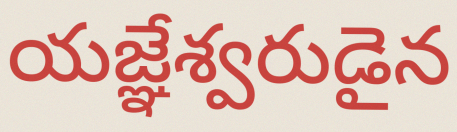
యజ్ఞేశ్వరుడైన